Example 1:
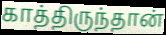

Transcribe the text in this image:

காத்திருந்தான்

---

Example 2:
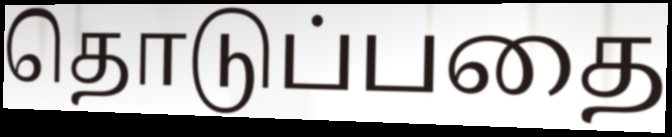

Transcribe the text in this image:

தொடுப்பதை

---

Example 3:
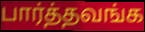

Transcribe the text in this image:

பார்த்தவங்க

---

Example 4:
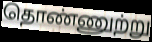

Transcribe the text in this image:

தொண்ணுற்று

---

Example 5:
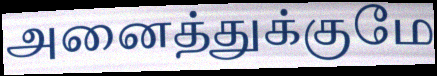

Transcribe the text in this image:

அனைத்துக்குமே